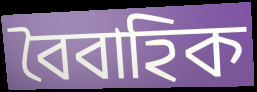
বৈবাহিক